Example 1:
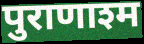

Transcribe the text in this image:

पुराणाश्म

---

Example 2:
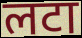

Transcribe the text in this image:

लटा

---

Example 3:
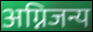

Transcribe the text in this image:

अग्निजन्य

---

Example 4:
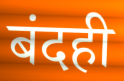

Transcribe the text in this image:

बंदही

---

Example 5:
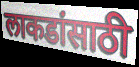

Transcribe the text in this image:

लाकडांसाठी